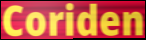
Coriden